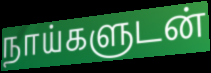
நாய்களுடன்